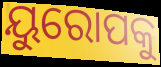
ୟୁରୋପକୁ